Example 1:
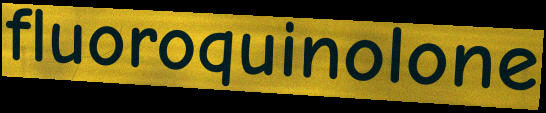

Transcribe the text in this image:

fluoroquinolone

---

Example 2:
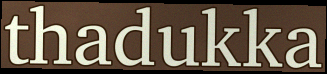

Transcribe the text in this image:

thadukka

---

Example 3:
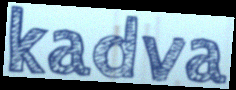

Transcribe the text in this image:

kadva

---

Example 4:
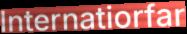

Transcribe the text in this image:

Internatiorfar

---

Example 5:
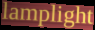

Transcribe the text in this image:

lamplight